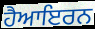
ਹੈਆਇਰਨ